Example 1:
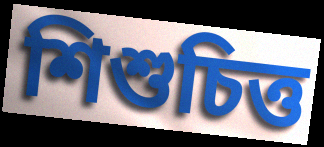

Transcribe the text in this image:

শিশুচিত্ত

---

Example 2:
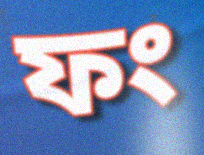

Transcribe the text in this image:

ফং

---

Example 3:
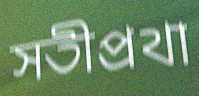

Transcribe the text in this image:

সতীপ্রথা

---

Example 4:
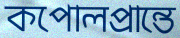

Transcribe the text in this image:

কপোলপ্রান্তে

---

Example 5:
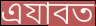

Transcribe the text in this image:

এযাবত